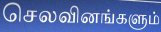
செலவினங்களும்